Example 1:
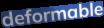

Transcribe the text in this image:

deformable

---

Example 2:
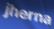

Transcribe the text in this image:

jherna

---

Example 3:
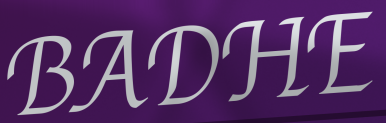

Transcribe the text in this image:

BADHE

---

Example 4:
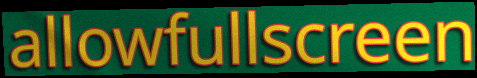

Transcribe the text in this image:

allowfullscreen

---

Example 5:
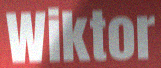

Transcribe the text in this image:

Wiktor